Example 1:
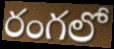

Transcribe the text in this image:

రంగలో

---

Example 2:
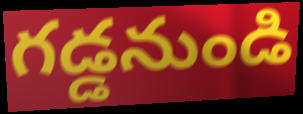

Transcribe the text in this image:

గడ్డనుండి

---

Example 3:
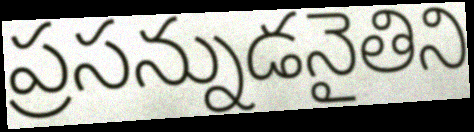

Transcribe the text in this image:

ప్రసన్నుడనైతిని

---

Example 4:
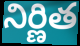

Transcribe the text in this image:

నిర్ణిత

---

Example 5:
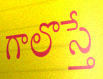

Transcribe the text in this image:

గాలొస్తే